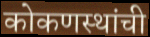
कोकणस्थांची